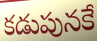
కడుపునకే